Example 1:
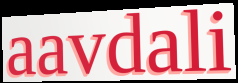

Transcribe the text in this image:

aavdali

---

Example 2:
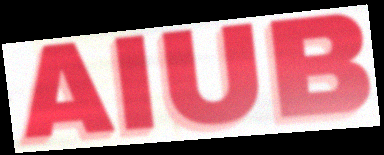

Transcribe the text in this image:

AIUB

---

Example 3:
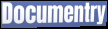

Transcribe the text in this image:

Documentry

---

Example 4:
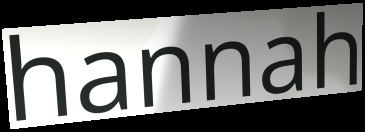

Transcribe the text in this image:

hannah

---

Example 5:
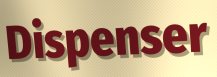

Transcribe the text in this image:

Dispenser